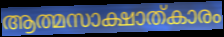
ആത്മസാക്ഷാത്കാരം